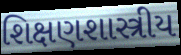
શિક્ષણશાસ્ત્રીય